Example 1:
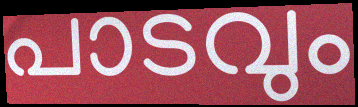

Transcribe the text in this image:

പാടവും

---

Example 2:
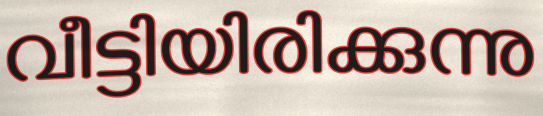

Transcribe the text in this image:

വീട്ടിയിരിക്കുന്നു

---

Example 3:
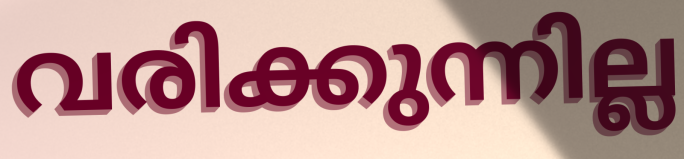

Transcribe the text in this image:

വരിക്കുന്നില്ല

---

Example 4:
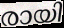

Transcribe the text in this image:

രായി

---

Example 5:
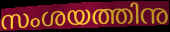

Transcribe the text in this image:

സംശയത്തിനു